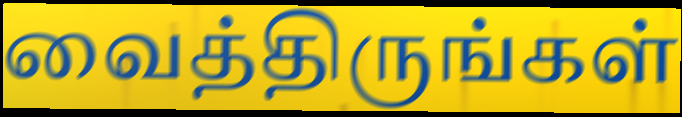
வைத்திருங்கள்